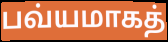
பவ்யமாகத்